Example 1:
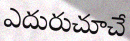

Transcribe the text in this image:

ఎదురుచూచే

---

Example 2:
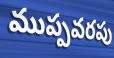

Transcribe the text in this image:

ముప్పవరపు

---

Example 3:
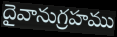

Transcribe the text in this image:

దైవానుగ్రహము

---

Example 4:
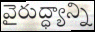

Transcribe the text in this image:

వైరుద్ధ్యాన్ని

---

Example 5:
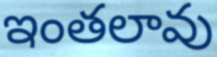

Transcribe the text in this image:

ఇంతలావు